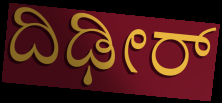
ದಿಢೀರ್